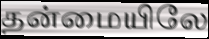
தன்மையிலே